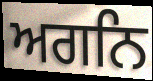
ਅਗਨਿ